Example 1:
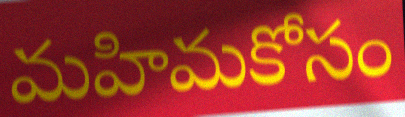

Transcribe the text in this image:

మహిమకోసం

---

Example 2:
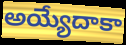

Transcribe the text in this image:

అయ్యేదాకా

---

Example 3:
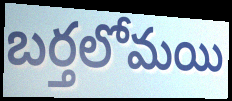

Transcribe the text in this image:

బర్తలోమయి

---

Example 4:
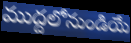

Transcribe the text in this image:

ముద్దలోనుండియే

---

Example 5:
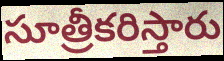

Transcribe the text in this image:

సూత్రీకరిస్తారు